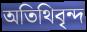
অতিথিবৃন্দ